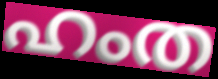
ഹംത